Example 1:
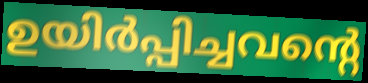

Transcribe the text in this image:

ഉയിർപ്പിച്ചവന്റെ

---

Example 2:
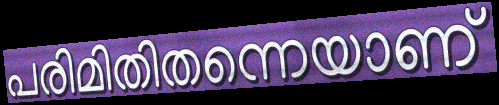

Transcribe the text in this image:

പരിമിതിതന്നെയാണ്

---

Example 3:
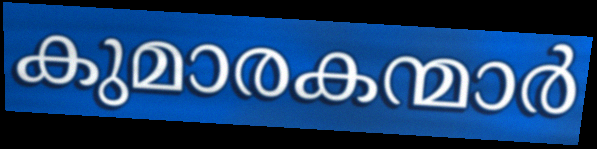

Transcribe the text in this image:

കുമാരകന്മാർ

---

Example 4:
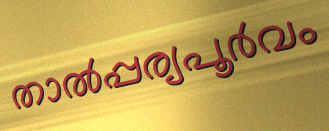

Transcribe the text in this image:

താൽപ്പര്യപൂർവം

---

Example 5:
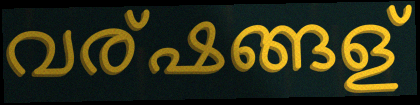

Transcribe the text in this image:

വര്ഷങ്ങള്